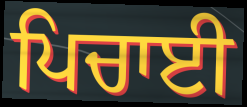
ਪਿਚਾਈ